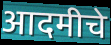
आदमीचे